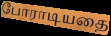
போராடியதை